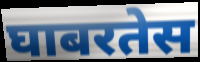
घाबरतेस